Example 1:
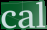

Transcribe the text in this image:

cal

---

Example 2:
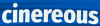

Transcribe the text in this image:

cinereous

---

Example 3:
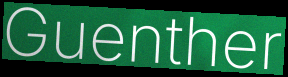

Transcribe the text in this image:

Guenther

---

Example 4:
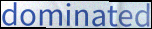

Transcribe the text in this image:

dominated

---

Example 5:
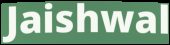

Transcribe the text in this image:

Jaishwal